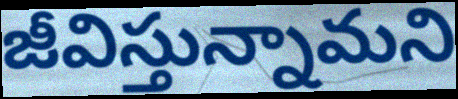
జీవిస్తున్నామని